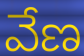
వేణ